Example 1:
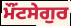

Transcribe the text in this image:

ਮੌਂਟਸੇਗੁਰ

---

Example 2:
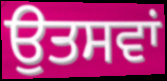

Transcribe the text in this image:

ਉਤਸਵਾਂ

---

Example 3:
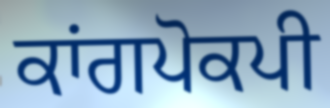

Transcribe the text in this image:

ਕਾਂਗਪੋਕਪੀ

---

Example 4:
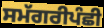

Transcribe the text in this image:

ਸਮੱਗਰੀਪੰਛੀ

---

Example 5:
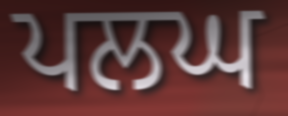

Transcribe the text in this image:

ਪਲਘ